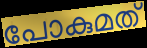
പോകുമത്